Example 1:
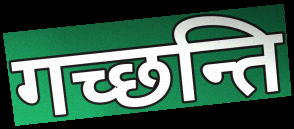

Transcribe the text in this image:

गच्छन्ति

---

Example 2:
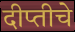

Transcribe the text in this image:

दीप्तीचे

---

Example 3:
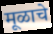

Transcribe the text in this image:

मूळाचे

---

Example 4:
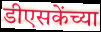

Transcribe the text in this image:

डीएसकेंच्या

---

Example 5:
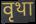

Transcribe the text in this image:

वृथा